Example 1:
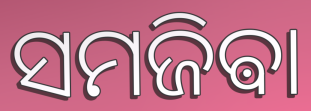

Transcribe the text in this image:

ସମଜିଵା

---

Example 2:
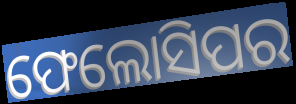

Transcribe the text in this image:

ଫେଲୋସିପର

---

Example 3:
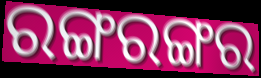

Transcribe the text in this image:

ରଙ୍ଗରଙ୍ଗର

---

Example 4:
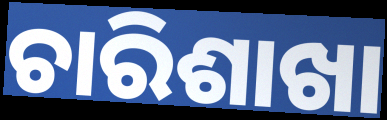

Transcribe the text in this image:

ଚାରିଶାଖା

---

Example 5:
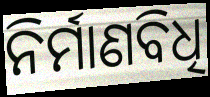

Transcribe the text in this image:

ନିର୍ମାଣବିଧି